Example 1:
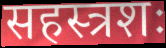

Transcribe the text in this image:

सहस्त्रशः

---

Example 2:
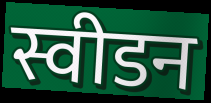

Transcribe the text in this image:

स्वीडन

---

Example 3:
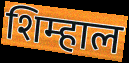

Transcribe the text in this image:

शिम्हाल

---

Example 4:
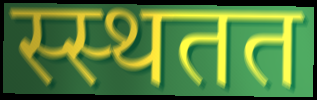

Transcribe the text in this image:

स्स्थतत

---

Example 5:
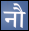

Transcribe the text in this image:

नौ